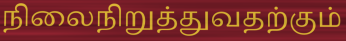
நிலைநிறுத்துவதற்கும்